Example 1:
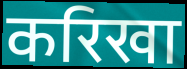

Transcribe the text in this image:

करिखा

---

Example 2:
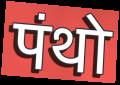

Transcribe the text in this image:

पंथो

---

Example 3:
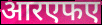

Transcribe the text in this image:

आरएफए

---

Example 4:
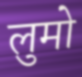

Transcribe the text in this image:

लुमो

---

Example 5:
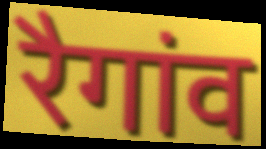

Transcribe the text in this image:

रैगांव